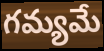
గమ్యమే